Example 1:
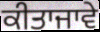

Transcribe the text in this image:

ਕੀਤਾਜਾਵੇ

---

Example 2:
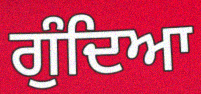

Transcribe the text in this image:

ਗੁੰਦਿਆ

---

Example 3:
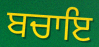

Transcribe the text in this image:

ਬਚਾਇ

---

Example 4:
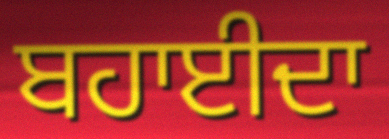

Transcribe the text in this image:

ਬਹਾਈਦਾ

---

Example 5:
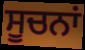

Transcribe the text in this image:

ਸੂਚਨਾਂ